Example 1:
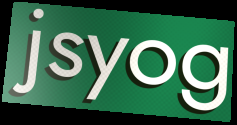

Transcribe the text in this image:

jsyog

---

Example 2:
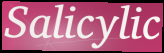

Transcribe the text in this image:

Salicylic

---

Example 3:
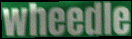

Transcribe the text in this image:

wheedle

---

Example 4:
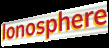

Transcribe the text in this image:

Ionosphere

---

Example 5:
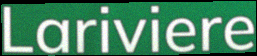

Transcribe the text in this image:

Lariviere